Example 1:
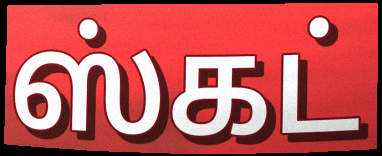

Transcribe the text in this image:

ஸ்கட்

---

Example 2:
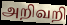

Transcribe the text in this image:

அறிவறி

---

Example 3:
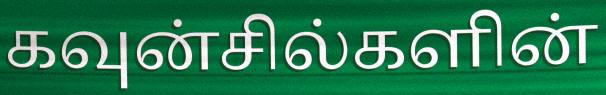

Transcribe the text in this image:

கவுன்சில்களின்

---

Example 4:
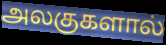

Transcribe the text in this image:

அலகுகளால்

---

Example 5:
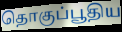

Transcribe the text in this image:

தொகுப்பூதிய